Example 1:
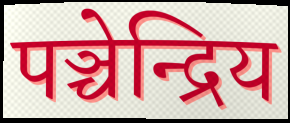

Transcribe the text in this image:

पञ्चेन्द्रिय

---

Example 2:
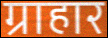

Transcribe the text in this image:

ग्राहार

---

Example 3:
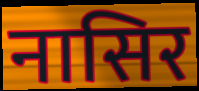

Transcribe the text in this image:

नासिर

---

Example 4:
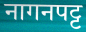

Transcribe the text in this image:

नागनपट्ट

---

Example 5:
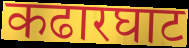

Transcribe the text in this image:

कढारघाट